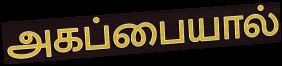
அகப்பையால்